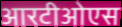
आरटीओएस